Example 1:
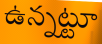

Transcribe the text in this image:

ఉన్నట్టూ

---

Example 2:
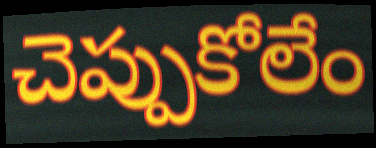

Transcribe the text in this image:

చెప్పుకోలేం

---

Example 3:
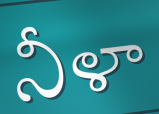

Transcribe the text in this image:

నీళా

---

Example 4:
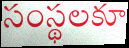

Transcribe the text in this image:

సంస్థలకూ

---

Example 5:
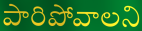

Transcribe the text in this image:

పారిపోవాలని